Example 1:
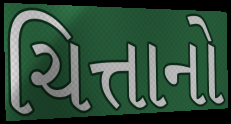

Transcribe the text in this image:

ચિત્તાનો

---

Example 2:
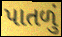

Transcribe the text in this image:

પાતળું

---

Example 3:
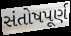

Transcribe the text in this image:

સંતોષપૂર્ણ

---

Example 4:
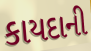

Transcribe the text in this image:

કાયદાની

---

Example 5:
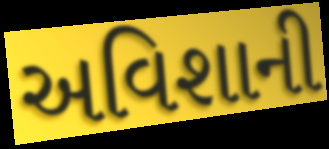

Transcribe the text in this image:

અવિશાની